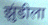
झुंडीला